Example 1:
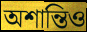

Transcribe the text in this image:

অশান্তিও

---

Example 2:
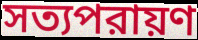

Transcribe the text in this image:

সত্যপরায়ণ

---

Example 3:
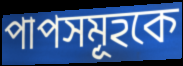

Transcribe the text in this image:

পাপসমূহকে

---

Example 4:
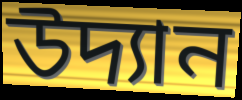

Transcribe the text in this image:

উদ্যান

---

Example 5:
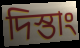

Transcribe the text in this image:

দিস্তাং